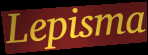
Lepisma